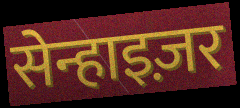
सेन्हाइज़र